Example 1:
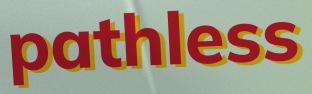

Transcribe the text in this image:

pathless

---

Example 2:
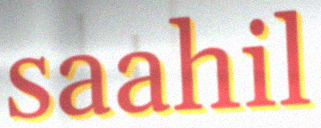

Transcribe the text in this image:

saahil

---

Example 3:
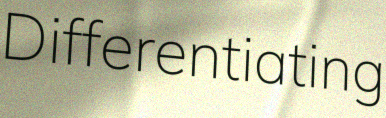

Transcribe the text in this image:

Differentiating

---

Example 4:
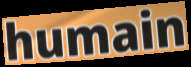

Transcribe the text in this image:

humain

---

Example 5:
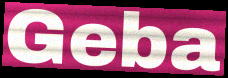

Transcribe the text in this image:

Geba